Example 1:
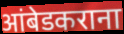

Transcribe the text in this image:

आंबेडकराना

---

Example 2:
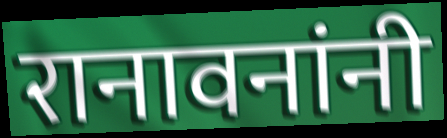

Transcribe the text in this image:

रानावनांनी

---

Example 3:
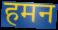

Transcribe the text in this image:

हमन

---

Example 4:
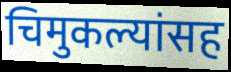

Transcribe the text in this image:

चिमुकल्यांसह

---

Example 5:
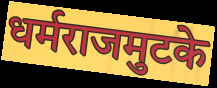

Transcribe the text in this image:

धर्मराजमुटके